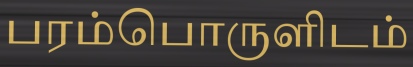
பரம்பொருளிடம்